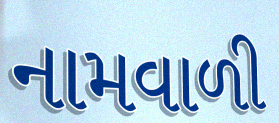
નામવાળી